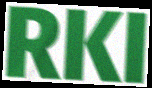
RKI